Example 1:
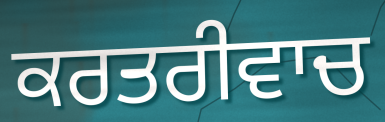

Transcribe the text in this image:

ਕਰਤਰੀਵਾਚ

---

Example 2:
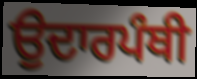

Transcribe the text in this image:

ਉਦਾਰਪੰਥੀ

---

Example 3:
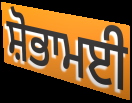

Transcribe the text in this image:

ਸ਼ੋਭਾਮਈ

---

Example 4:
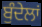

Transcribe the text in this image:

ਬੁੰਦੇਲਾਂ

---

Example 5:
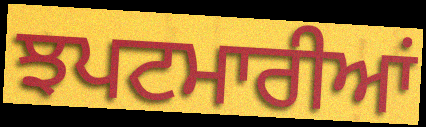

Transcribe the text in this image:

ਝਪਟਮਾਰੀਆਂ